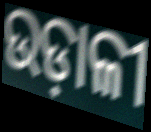
ଉଡ଼ାଳୀ